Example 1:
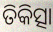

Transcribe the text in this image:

ତିକିତ୍ସା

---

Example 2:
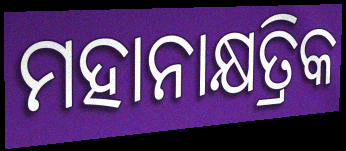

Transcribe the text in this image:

ମହାନାକ୍ଷତ୍ରିକ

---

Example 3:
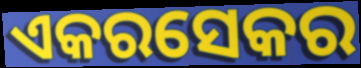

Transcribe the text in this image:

ଏକରସେକର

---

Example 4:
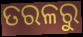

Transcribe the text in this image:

ତରଳରୁ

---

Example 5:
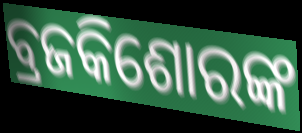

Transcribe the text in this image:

ବ୍ରଜକିଶୋରଙ୍କ